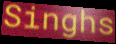
Singhs